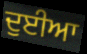
ਦੁਈਆ